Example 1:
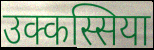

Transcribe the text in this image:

उक्कस्सिया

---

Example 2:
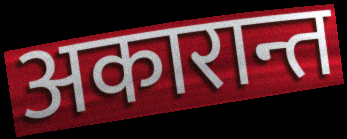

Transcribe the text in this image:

अकारान्त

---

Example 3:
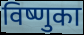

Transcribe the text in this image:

विष्णुका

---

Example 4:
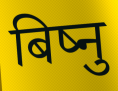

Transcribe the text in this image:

बिष्नु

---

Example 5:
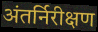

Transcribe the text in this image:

अंतर्निरीक्षण